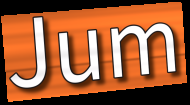
Jum